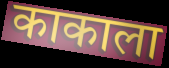
काकाला